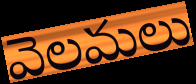
వెలమలు